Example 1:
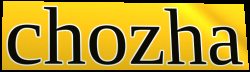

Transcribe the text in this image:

chozha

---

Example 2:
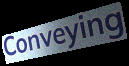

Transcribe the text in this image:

Conveying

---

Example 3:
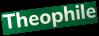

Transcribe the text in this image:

Theophile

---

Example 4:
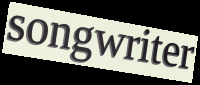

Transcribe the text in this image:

songwriter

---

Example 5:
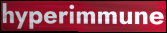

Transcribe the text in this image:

hyperimmune